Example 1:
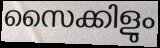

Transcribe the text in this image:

സൈക്കിളും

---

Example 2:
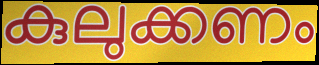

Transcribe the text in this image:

കുലുക്കണം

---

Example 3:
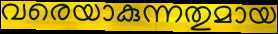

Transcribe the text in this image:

വരെയാകുന്നതുമായ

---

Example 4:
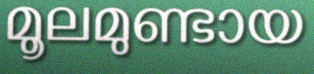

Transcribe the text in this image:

മൂലമുണ്ടായ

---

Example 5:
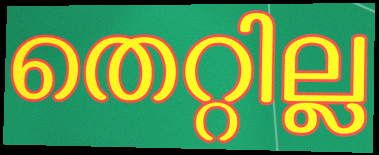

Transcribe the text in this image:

തെറ്റില്ല